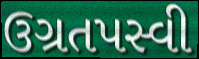
ઉગ્રતપસ્વી